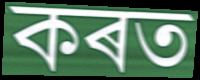
কৰত